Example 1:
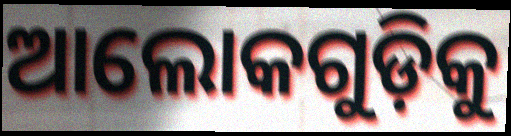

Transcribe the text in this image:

ଆଲୋକଗୁଡ଼ିକୁ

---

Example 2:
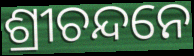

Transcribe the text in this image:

ଶ୍ରୀଚନ୍ଦନେ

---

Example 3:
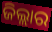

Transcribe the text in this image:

ଜିଲ୍ଲାର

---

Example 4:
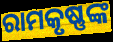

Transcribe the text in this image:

ରାମକୃଷ୍ଣଙ୍କ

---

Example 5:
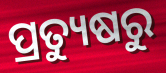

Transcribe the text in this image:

ପ୍ରତ୍ୟୁଷରୁ